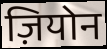
ज़ियोन